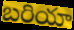
బరియా